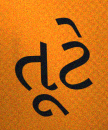
તૂટે